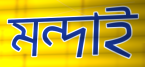
মন্দাই